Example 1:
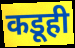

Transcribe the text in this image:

कडूही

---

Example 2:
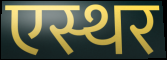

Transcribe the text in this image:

एस्थर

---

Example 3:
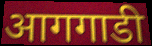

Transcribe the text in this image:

आगगाडी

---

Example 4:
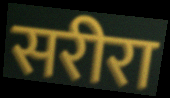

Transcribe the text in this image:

सरीरा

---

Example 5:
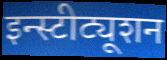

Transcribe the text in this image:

इन्स्टीट्यूशन